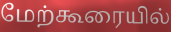
மேற்கூரையில்